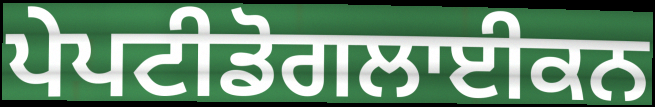
ਪੇਪਟੀਡੋਗਲਾਈਕਨ